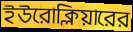
ইউরোক্লিয়ারের